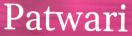
Patwari